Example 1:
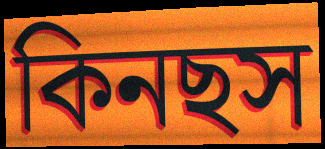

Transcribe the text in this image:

কিনছস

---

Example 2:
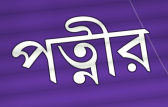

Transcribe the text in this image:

পত্নীর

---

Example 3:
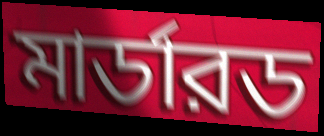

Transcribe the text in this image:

মার্ডারড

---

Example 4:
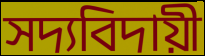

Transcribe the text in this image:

সদ্যবিদায়ী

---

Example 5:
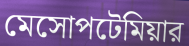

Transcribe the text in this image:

মেসোপটেমিয়ার